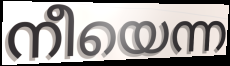
നീയെന്ന